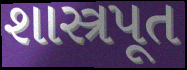
શાસ્ત્રપૂત